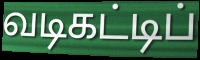
வடிகட்டிப்